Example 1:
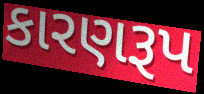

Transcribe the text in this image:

કારણરૂપ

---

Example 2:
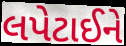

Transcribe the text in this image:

લપેટાઈને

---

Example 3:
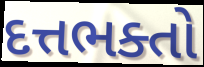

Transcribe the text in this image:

દત્તભક્તો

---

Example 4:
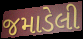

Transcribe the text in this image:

જમાડેલી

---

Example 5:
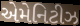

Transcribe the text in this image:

એમેનિટીઝ